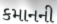
કમાનની